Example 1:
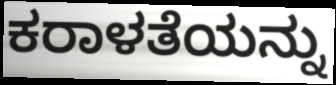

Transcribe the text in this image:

ಕರಾಳತೆಯನ್ನು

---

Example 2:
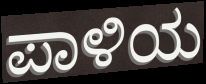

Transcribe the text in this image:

ಪಾಳಿಯ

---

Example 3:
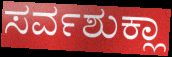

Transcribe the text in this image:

ಸರ್ವಶುಕ್ಲಾ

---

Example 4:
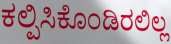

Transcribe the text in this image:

ಕಲ್ಪಿಸಿಕೊಂಡಿರಲಿಲ್ಲ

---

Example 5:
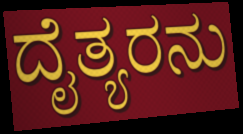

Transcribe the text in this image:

ದೈತ್ಯರನು